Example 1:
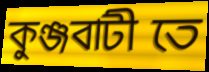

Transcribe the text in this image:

কুঞ্জবাটীতে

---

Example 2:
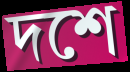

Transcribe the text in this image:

দশে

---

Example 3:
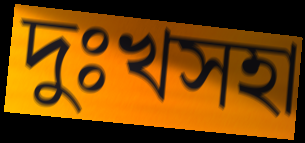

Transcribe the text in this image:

দুঃখসহা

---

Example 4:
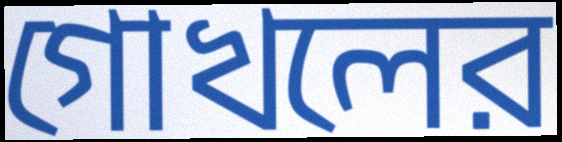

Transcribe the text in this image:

গোখলের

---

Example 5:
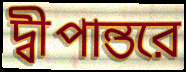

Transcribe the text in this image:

দ্বীপান্তরে